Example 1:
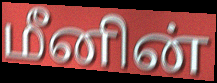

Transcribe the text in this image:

மீனின்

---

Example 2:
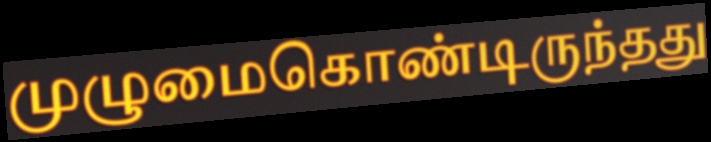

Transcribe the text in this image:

முழுமைகொண்டிருந்தது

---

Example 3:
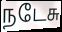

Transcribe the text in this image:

நடேசு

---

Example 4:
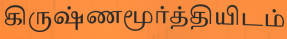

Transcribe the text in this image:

கிருஷ்ணமூர்த்தியிடம்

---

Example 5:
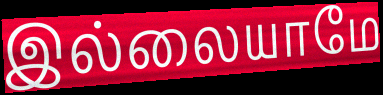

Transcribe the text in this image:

இல்லையாமே